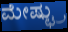
ಮೇಷ್ಟ್ರು